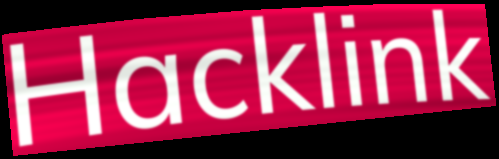
Hacklink